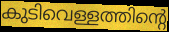
കുടിവെള്ളത്തിന്റെ